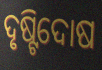
ଦୃଷ୍ଟିଦୋଷ